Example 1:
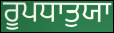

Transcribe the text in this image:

ਰੂਪਧਾਤੁਯਾ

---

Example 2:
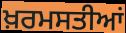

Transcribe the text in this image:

ਖ਼ਰਮਸਤੀਆਂ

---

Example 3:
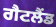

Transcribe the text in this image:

ਗੈਟਲੈਂਡ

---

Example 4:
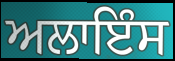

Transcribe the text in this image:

ਅਲਾਇੰਸ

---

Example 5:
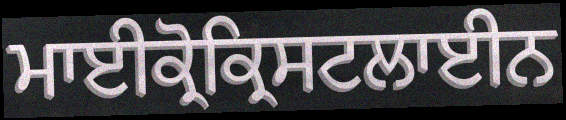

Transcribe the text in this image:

ਮਾਈਕ੍ਰੋਕ੍ਰਿਸਟਲਾਈਨ